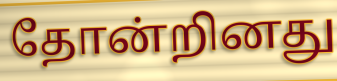
தோன்றினது